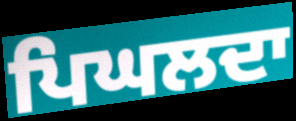
ਪਿਘਲਦਾ